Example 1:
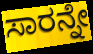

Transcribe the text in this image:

ಸಾರನ್ನೇ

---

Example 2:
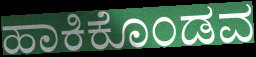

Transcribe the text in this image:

ಹಾಕಿಕೊಂಡವ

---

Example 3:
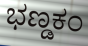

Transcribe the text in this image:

ಭಣ್ಡಕಂ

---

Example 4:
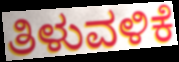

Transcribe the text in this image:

ತಿಳುವಳಿಕೆ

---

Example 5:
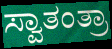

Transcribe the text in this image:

ಸ್ವಾತಂತ್ರಾ